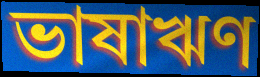
ভাষাঋণ